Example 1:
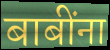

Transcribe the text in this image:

बाबींना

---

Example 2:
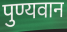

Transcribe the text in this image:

पुण्यवान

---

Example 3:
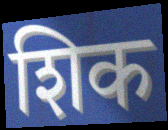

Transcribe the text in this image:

शिक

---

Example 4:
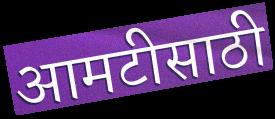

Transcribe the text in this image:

आमटीसाठी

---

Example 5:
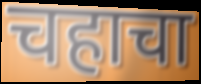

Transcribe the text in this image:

चहाचा